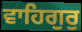
ਵਾਹਿਗੁਰੁ